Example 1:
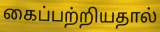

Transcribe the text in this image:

கைப்பற்றியதால்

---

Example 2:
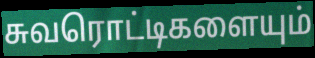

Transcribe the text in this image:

சுவரொட்டிகளையும்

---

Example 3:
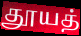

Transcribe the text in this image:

தூயத்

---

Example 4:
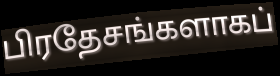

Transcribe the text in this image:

பிரதேசங்களாகப்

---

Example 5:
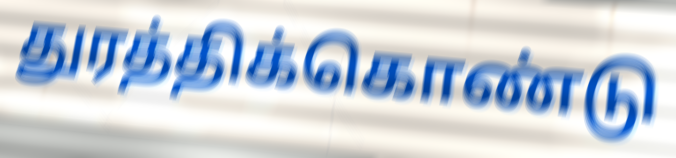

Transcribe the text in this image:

துரத்திக்கொண்டு